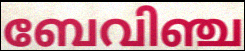
ബേവിഞ്ച